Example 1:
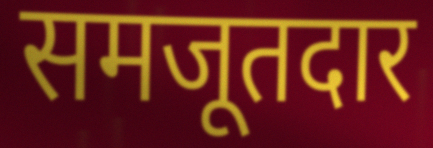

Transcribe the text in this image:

समजूतदार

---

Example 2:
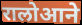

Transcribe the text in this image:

रालोआने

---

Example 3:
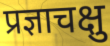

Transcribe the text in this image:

प्रज्ञाचक्षु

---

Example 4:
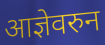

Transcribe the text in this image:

आज्ञेवरुन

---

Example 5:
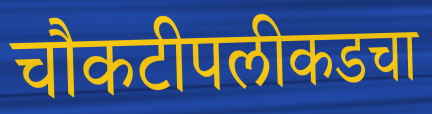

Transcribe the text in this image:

चौकटीपलीकडचा